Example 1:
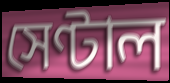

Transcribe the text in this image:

সেণ্টাল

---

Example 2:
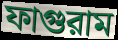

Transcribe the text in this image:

ফাগুরাম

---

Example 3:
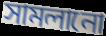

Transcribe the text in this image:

সামলানো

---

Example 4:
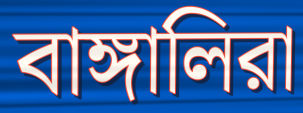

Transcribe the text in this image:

বাঙ্গালিরা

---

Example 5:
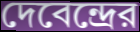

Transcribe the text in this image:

দেবেন্দ্রের